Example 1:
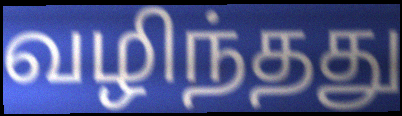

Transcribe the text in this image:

வழிந்தது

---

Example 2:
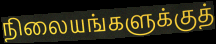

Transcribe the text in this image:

நிலையங்களுக்குத்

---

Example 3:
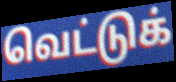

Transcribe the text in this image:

வெட்டுக்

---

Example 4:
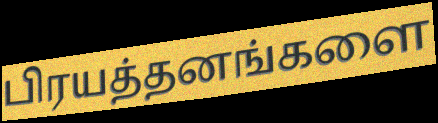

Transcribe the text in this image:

பிரயத்தனங்களை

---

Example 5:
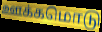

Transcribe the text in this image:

ஊக்கமொடு